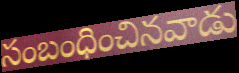
సంబంధించినవాడు